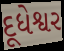
દૂધેશ્વર